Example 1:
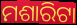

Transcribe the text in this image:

ମଶାରିଟା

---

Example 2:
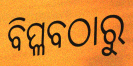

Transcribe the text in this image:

ବିପ୍ଳବଠାରୁ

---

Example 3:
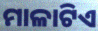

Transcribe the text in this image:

ମାଳାଟିଏ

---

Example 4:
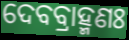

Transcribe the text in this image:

ଦେବବ୍ରାହ୍ମଣଃ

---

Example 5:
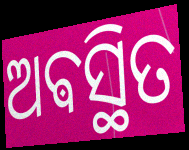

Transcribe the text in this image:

ଅଵସ୍ଥିତ